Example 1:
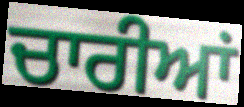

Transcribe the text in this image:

ਚਾਰੀਆਂ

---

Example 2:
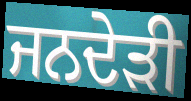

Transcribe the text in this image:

ਜਨਦੇੜੀ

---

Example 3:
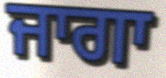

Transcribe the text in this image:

ਜਾਗਾ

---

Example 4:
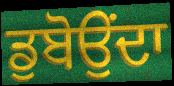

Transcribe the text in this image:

ਡੁਬੋਉਂਦਾ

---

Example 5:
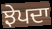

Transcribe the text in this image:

ਝੇਪਦਾ